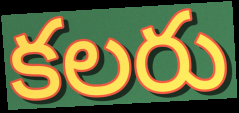
కలరు